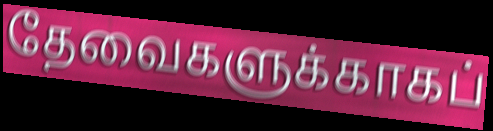
தேவைகளுக்காகப்